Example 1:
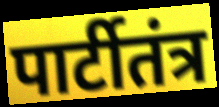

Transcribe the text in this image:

पार्टीतंत्र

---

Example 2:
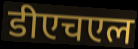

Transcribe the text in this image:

डीएचएल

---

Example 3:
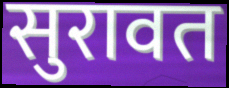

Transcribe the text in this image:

सुरावत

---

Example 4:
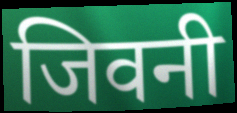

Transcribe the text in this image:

जिवनी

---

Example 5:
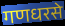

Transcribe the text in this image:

गणधरसे